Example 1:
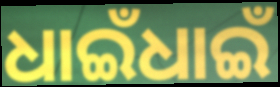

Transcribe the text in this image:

ଧାଇଁଧାଇଁ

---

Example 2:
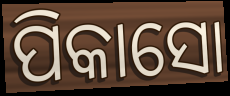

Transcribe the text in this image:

ପିକାସୋ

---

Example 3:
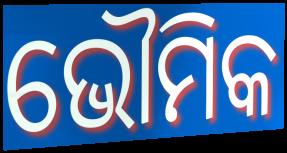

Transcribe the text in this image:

ଭୌମିକ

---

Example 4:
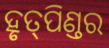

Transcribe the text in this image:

ହୃତ୍‌ପିଣ୍ଡର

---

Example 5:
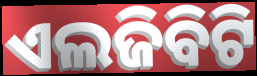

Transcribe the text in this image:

ଏଲଜିବିଟି